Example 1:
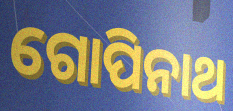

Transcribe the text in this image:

ଗୋପିନାଥ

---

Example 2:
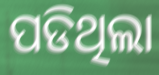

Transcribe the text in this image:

ପଡିଥିଲା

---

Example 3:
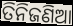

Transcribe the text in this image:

ତିନିଜଣିଆ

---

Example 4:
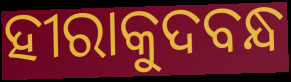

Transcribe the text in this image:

ହୀରାକୁଦବନ୍ଧ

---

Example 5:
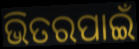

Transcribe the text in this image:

ଭିତରପାଇଁ